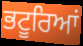
ਭਟੂਰਿਆਂ